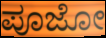
ಪೂಜೋ